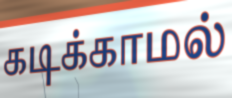
கடிக்காமல்